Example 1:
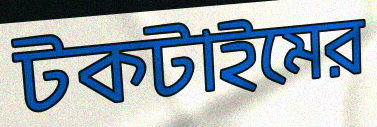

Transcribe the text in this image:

টকটাইমের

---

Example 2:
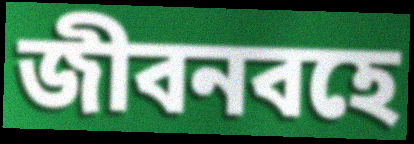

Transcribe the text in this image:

জীবনবহে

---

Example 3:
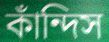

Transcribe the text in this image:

কাঁন্দিস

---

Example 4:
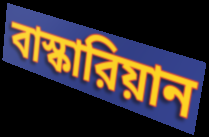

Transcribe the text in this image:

বাস্কারিয়ান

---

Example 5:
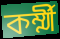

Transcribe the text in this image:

কর্ম্মী